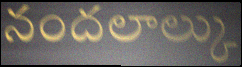
నందలాల్కు